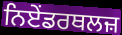
ਨਿਏਂਡਰਥਲਜ਼